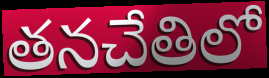
తనచేతిలో